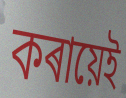
কৰায়েই